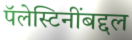
पॅलेस्टिनींबद्दल